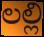
లల్లి